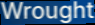
Wrought